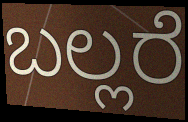
ಬಲ್ಲರೆ